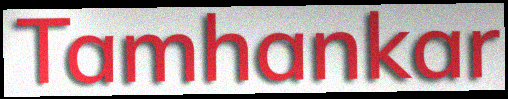
Tamhankar